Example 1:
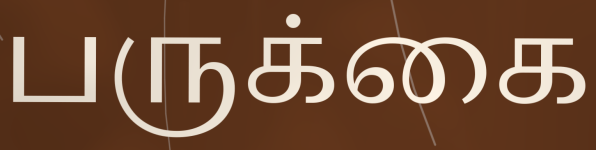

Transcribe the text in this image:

பருக்கை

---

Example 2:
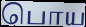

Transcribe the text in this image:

பொய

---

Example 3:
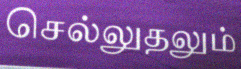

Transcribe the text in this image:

செல்லுதலும்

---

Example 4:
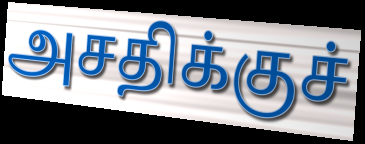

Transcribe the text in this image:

அசதிக்குச்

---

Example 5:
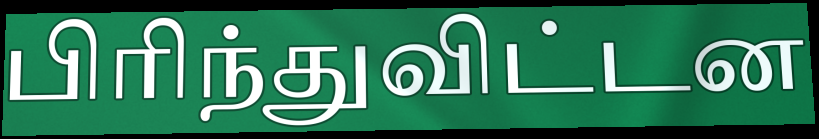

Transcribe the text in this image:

பிரிந்துவிட்டன